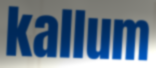
kallum